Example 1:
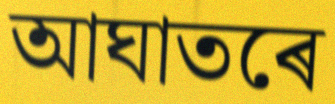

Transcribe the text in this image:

আঘাতৰে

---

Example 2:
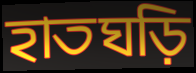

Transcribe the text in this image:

হাতঘড়ি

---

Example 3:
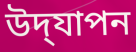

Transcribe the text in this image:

উদ্‌যাপন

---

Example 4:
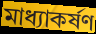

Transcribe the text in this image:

মাধ্যাকৰ্ষণ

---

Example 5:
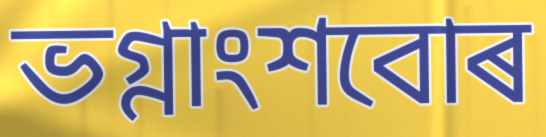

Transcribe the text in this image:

ভগ্নাংশবোৰ